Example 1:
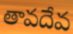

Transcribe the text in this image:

తావదేవ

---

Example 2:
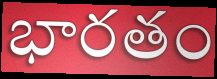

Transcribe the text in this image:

భారతం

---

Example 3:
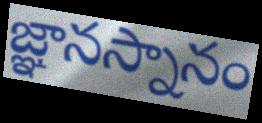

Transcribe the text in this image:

జ్ఞానస్నానం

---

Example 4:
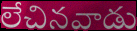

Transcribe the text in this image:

లేచినవాడు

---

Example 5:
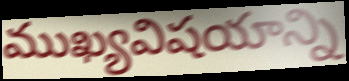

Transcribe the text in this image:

ముఖ్యవిషయాన్ని